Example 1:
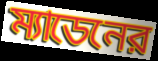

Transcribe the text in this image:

ম্যাডেনের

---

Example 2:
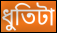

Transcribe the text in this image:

ধুতিটা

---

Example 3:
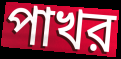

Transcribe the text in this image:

পাখর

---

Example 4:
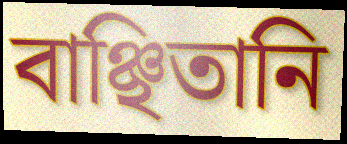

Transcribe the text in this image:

বাঞ্ছিতানি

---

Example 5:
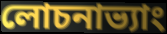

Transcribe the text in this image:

লোচনাভ্যাং